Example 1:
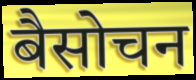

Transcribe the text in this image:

बैसोचन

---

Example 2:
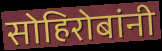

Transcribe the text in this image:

सोहिरोबांनी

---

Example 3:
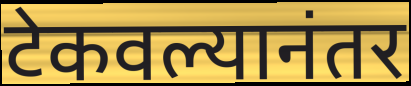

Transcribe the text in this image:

टेकवल्यानंतर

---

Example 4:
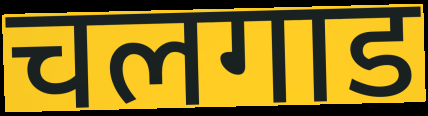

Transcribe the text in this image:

चलगाड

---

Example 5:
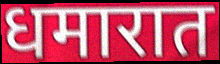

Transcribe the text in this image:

धमारात